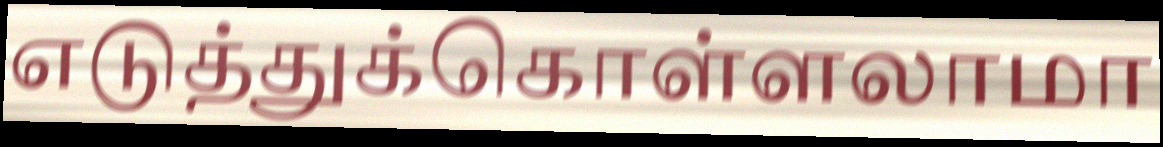
எடுத்துக்கொள்ளலாமா